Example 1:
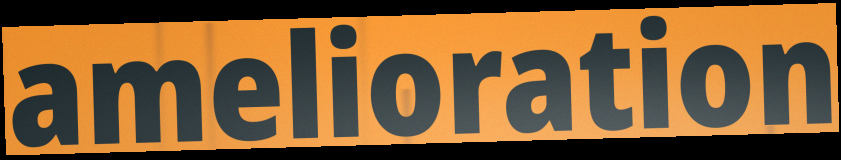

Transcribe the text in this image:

amelioration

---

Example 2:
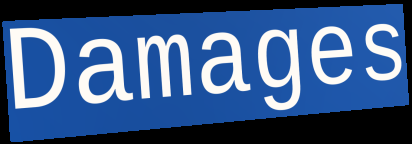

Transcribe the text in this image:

Damages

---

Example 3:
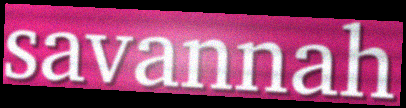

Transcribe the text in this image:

savannah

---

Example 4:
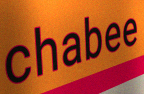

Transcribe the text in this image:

chabee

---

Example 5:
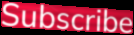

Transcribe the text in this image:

Subscribe